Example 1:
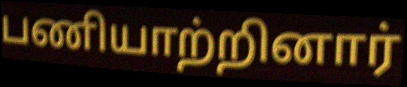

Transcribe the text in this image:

பணியாற்றினார்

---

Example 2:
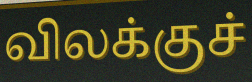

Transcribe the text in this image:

விலக்குச்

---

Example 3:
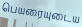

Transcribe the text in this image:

பெயரையுடைய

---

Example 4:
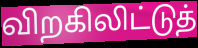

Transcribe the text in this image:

விறகிலிட்டுத்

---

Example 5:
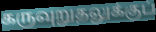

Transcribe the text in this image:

கருவுறுதலுக்குப்